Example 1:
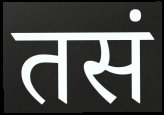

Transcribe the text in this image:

तसं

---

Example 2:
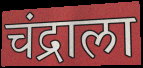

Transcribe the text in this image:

चंद्राला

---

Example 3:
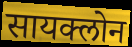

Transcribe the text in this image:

सायक्लोन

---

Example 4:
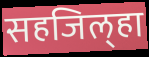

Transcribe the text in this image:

सहजिल्हा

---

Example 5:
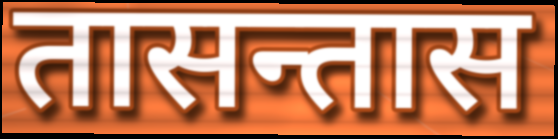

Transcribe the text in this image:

तासन्तास